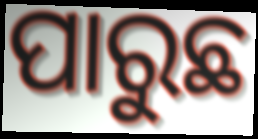
ପାରୁଛ